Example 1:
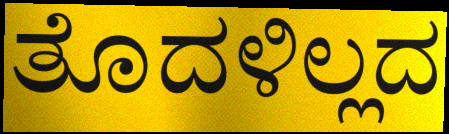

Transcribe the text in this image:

ತೊದಳಿಲ್ಲದ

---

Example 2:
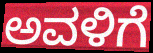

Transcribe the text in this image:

ಅವಳಿಗೆ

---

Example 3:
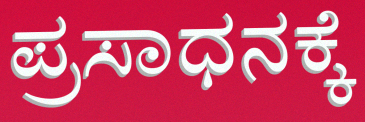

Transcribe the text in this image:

ಪ್ರಸಾಧನಕ್ಕೆ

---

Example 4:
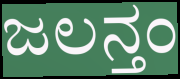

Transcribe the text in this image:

ಜಲನ್ತಂ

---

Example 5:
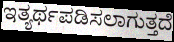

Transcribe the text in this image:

ಇತ್ಯರ್ಥಪಡಿಸಲಾಗುತ್ತದೆ